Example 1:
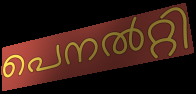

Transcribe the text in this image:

പെനൽറ്റി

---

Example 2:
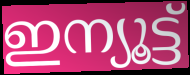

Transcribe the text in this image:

ഇന്യൂട്ട്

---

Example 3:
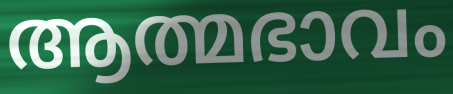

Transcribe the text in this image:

ആത്മഭാവം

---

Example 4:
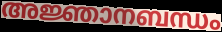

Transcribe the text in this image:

അജ്ഞാനബന്ധം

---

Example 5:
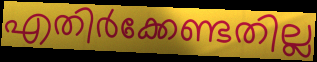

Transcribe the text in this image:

എതിർക്കേണ്ടതില്ല